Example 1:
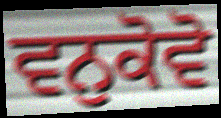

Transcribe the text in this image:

ਵਨੁਕੋਵੋ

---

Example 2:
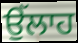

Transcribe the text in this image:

ਉੱਲਾਹ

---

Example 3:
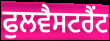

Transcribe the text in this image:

ਫੁਲਵੈਸਟਰੈਂਟ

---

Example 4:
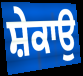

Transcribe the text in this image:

ਸ਼ੇਕਾਉ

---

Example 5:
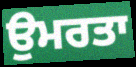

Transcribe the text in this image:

ਉਮਰਤਾ